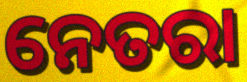
ନେତରା